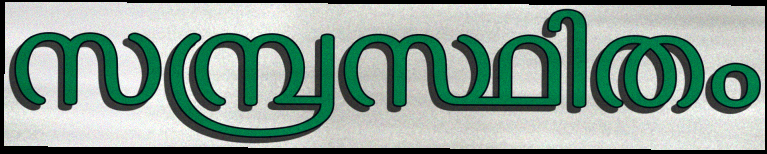
സമ്പ്രസ്ഥിതം